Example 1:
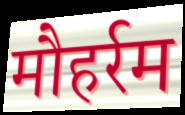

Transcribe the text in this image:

मौहर्रम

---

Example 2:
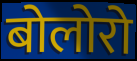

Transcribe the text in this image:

बोलोरो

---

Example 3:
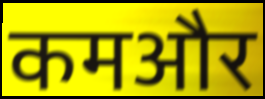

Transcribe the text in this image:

कमऔर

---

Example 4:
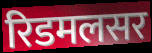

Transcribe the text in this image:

रिडमलसर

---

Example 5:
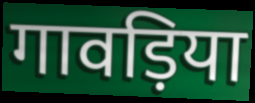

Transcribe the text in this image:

गावड़िया